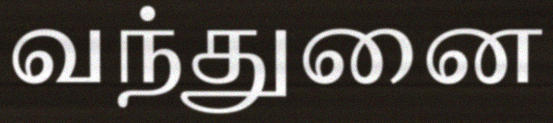
வந்துனை